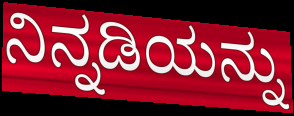
ನಿನ್ನಡಿಯನ್ನು